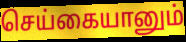
செய்கையானும்